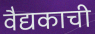
वैद्यकाची